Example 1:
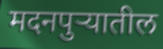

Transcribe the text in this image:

मदनपुऱ्यातील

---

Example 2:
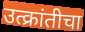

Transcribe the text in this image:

उत्क्रांतीचा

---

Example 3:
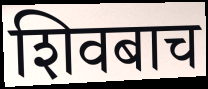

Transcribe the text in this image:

शिवबाच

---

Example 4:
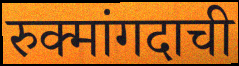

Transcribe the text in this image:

रुक्मांगदाची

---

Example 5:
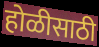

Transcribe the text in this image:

होळीसाठी